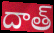
దాత్